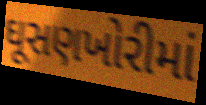
ઘૂસણખોરીમાં